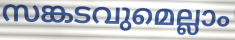
സങ്കടവുമെല്ലാം